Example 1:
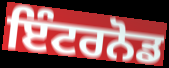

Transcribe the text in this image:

ਇੰਟਰਨੋਡ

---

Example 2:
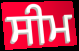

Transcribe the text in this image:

ਸੀਮ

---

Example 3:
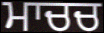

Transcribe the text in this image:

ਮਾਚਚ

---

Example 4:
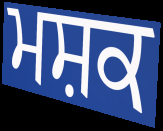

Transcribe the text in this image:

ਮਸ਼ਕ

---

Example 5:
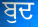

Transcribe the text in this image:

ਬੁਦ